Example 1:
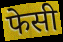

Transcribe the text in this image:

फेसी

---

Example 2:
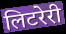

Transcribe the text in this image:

लिटरेरी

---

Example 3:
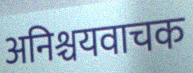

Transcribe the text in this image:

अनिश्चयवाचक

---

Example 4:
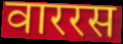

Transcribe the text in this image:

वाररस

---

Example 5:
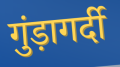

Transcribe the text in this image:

गुंड़ागर्दी